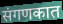
संगणकात